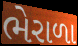
ભેરાળા